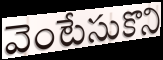
వెంటేసుకొని